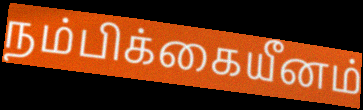
நம்பிக்கையீனம்